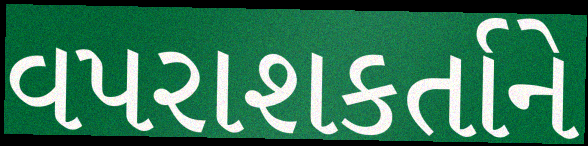
વપરાશકર્તાને